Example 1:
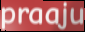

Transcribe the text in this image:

praaju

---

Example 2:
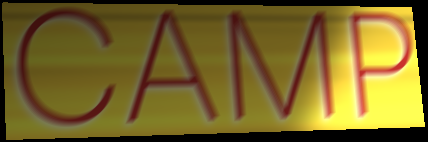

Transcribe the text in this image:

CAMP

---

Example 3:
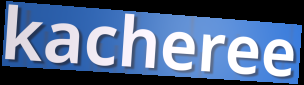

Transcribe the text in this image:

kacheree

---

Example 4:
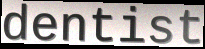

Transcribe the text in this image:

dentist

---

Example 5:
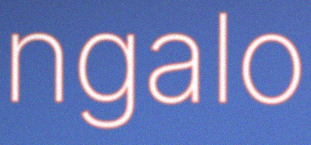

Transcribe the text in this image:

ngalo